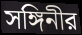
সঙ্গিনীর